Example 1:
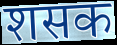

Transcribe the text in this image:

शसक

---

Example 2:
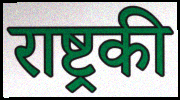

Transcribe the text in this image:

राष्ट्रकी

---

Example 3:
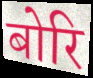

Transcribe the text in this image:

बोरि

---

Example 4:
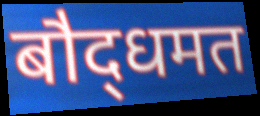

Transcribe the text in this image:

बौद्धमत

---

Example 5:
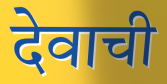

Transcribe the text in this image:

देवाची